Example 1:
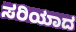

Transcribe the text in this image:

ಸರಿಯಾದ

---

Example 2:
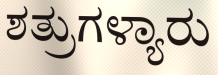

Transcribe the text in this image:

ಶತ್ರುಗಳ್ಯಾರು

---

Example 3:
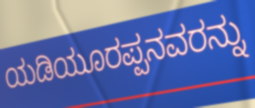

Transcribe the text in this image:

ಯಡಿಯೂರಪ್ಪನವರನ್ನು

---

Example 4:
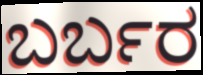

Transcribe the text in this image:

ಬರ್ಬರ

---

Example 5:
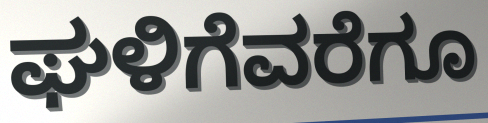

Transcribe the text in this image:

ಘಳಿಗೆವರೆಗೂ